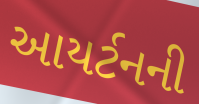
આયર્ટનની